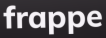
frappe